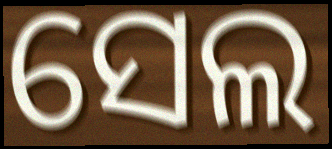
ସେଲ